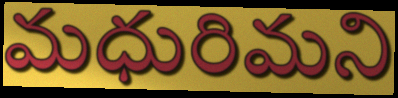
మధురిమని